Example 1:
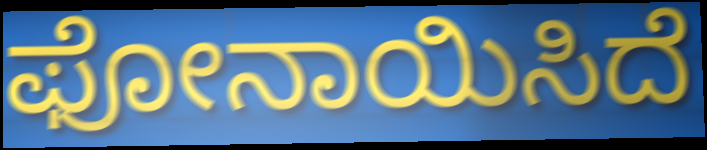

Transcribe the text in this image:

ಫೋನಾಯಿಸಿದೆ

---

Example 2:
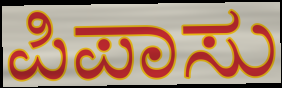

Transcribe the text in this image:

ಪಿಪಾಸು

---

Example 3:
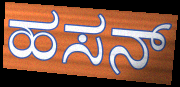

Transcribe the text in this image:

ಹಸನ್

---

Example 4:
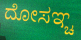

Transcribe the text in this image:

ದೋಸಞ್ಚ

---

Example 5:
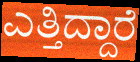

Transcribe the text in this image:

ಎತ್ತಿದ್ದಾರೆ